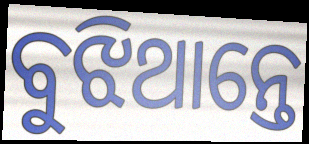
ବୁଝିଥାନ୍ତେ